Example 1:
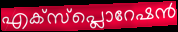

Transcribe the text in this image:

എക്സ്പ്ലൊറേഷൻ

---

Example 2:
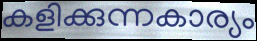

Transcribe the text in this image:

കളിക്കുന്നകാര്യം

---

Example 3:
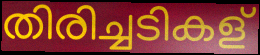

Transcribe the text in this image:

തിരിച്ചടികള്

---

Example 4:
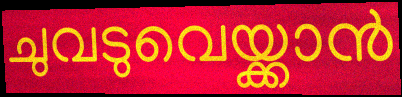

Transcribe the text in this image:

ചുവടുവെയ്ക്കാൻ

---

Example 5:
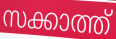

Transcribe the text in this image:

സക്കാത്ത്